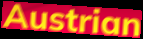
Austrian